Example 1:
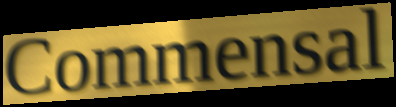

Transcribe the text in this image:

Commensal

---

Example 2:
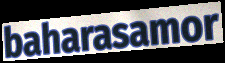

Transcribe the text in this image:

baharasamor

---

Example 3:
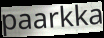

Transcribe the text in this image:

paarkka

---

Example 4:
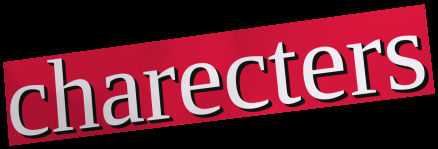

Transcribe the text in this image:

charecters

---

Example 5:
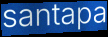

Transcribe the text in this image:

santapa